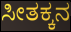
ಸೀತಕ್ಕನ